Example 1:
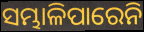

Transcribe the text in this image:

ସମ୍ଭାଳିପାରେନି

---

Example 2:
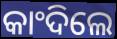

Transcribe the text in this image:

କାଂଦିଲେ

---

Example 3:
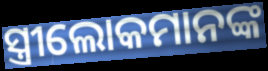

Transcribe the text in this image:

ସ୍ତ୍ରୀଲୋକମାନଙ୍କ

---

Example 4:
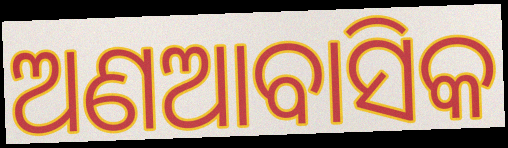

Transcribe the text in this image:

ଅଣଆବାସିକ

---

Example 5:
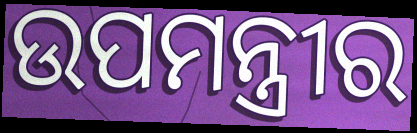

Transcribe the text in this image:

ଉପମନ୍ତ୍ରୀର